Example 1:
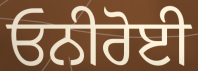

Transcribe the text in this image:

ਓਨੀਰੋਈ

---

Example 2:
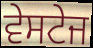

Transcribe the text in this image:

ਵੇਸਟੇਜ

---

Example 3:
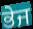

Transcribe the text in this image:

ਭੇਜ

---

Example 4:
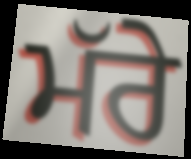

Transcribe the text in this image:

ਮੱਰੇ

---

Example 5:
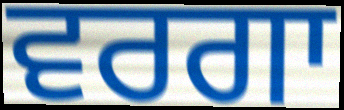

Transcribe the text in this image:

ਵਰਗਾ